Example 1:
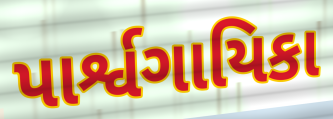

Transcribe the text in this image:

પાર્શ્વગાયિકા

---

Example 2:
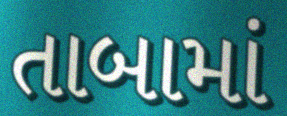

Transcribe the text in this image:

તાબામાં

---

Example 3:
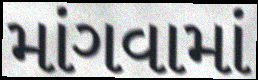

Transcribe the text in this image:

માંગવામાં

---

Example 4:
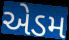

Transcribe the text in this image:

એડમ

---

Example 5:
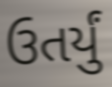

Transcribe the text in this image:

ઉતર્યું